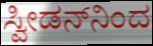
ಸ್ವೀಡನ್‌ನಿಂದ